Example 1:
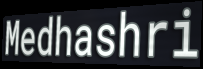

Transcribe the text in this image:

Medhashri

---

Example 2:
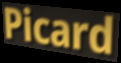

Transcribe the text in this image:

Picard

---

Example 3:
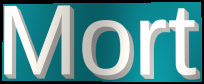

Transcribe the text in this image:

Mort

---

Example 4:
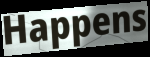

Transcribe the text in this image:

Happens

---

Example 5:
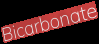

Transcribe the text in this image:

Bicarbonate